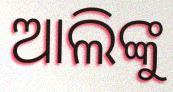
ଆଲିଙ୍କୁ